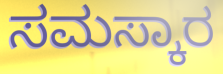
ಸಮಸ್ಕಾರ